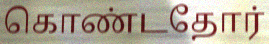
கொண்டதோர்